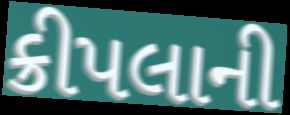
ક્રીપલાની